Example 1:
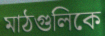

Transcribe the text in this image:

মাঠগুলিকে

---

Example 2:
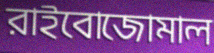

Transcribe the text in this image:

রাইবোজোমাল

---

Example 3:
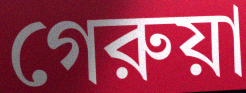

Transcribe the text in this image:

গেরুয়া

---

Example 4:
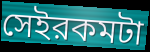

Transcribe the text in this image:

সেইরকমটা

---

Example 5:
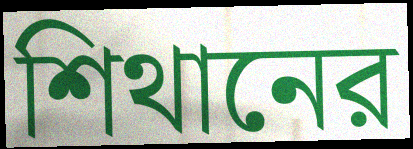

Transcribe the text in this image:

শিথানের